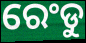
ରେଂଡୁ